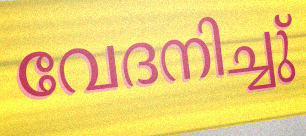
വേദനിച്ചു്